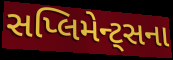
સપ્લિમેન્ટ્સના